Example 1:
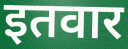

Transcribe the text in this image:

इतवार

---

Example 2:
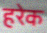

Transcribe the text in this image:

हरेक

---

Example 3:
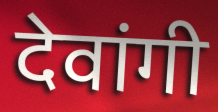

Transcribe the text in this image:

देवांगी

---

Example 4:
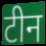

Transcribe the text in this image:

टीन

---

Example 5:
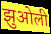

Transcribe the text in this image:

झुओली